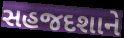
સહજદશાને